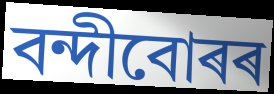
বন্দীবোৰৰ